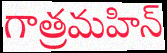
గాత్రమహిన్